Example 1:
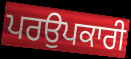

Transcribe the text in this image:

ਪਰਉਪਕਾਰੀ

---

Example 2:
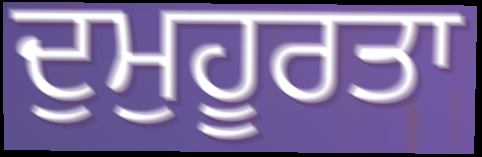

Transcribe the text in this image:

ਦੁਮੁਹੂਰਤਾ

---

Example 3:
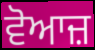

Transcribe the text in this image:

ਵੋਆਜ਼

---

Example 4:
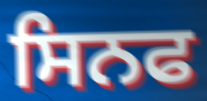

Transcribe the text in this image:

ਸਿਨਫ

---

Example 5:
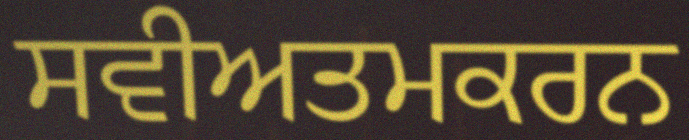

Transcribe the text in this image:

ਸਵੀਅਤਮਕਰਨ